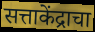
सत्ताकेंद्राचा